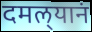
दमल्यानं